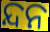
ନ୍ଦନ